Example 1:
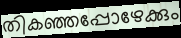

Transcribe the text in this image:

തികഞ്ഞപ്പോഴേക്കും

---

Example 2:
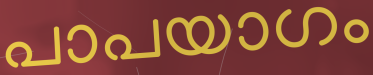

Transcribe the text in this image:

പാപയാഗം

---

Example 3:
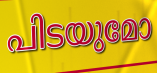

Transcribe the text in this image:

പിടയുമോ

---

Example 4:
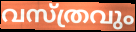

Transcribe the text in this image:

വസ്ത്രവും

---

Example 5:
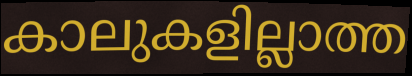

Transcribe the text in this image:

കാലുകളില്ലാത്ത